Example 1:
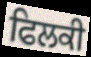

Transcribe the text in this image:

ਫਿਲਕੀ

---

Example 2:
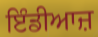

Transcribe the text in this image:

ਇੰਡੀਆਜ਼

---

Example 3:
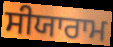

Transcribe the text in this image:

ਸੀਯਾਰਾਮ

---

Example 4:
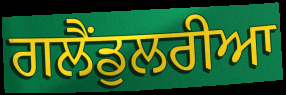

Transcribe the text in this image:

ਗਲੈਂਡੁਲਰੀਆ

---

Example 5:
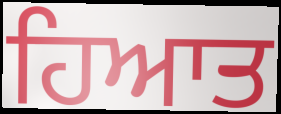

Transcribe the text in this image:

ਹਿਆਤ